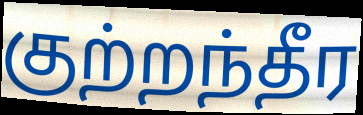
குற்றந்தீர